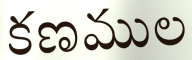
కణముల